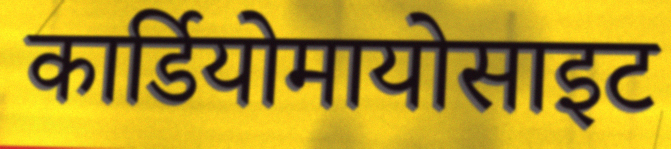
कार्डियोमायोसाइट